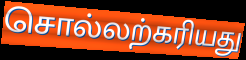
சொல்லற்கரியது